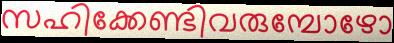
സഹിക്കേണ്ടിവരുമ്പോഴോ